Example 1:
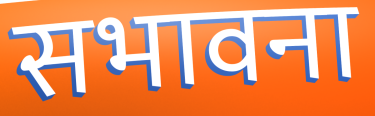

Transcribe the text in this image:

सभावना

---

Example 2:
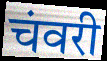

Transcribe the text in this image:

चंवरी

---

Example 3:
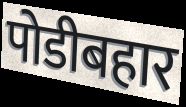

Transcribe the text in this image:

पोडीबहार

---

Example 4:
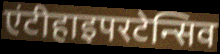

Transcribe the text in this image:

एंटीहाइपरटेन्सिव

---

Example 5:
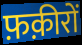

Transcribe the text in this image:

फ़क़ीरों